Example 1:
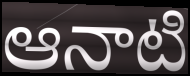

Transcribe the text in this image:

ఆనాటి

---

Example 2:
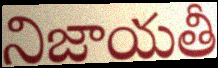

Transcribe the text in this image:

నిజాయతీ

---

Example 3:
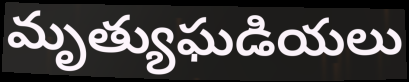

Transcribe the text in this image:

మృత్యుఘడియలు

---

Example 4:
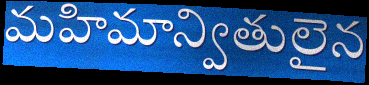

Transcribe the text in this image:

మహిమాన్వితులైన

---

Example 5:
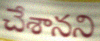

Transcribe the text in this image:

చేశానని